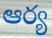
ఆర్య